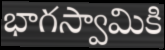
భాగస్వామికి